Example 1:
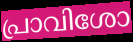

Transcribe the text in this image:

പ്രാവിശോ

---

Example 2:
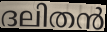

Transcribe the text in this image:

ദലിതൻ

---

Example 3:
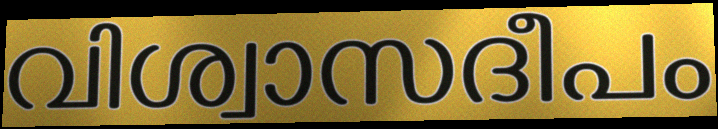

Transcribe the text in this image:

വിശ്വാസദീപം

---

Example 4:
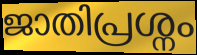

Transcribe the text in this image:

ജാതിപ്രശ്നം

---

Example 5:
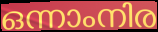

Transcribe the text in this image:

ഒന്നാംനിര